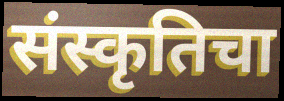
संस्कृतिचा